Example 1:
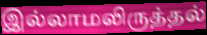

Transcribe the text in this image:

இல்லாமலிருத்தல்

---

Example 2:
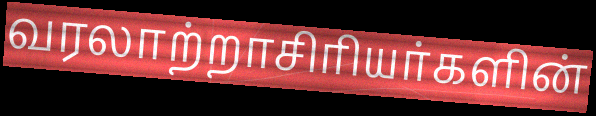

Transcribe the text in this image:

வரலாற்றாசிரியர்களின்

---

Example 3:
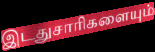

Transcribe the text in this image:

இடதுசாரிகளையும்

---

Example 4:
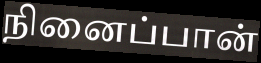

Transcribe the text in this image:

நினைப்பான்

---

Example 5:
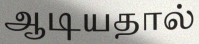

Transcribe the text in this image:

ஆடியதால்